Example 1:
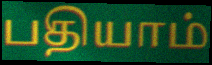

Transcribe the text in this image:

பதியாம்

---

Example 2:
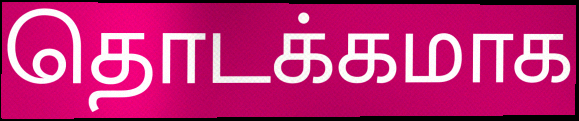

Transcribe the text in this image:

தொடக்கமாக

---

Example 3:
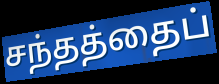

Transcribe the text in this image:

சந்தத்தைப்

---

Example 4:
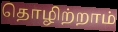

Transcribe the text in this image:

தொழிற்றாம்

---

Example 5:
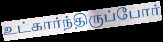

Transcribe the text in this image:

உட்கார்ந்திருப்போர்